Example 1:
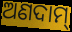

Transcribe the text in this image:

ଅଣଦାମ୍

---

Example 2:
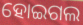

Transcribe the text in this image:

ହୋଇଗଲ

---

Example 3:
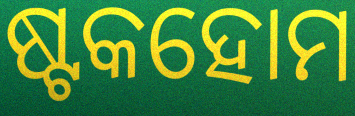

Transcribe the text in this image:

ଷ୍ଟକହୋମ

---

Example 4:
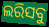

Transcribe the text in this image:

ଲରିସବୁ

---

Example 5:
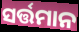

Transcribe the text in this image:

ସର୍ତ୍ତମାନ